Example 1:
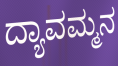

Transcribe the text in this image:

ದ್ಯಾವಮ್ಮನ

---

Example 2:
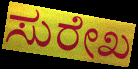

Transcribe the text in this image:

ಸುರೇಖ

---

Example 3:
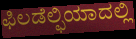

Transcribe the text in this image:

ಫಿಲಡೆಲ್ಫಿಯಾದಲ್ಲಿ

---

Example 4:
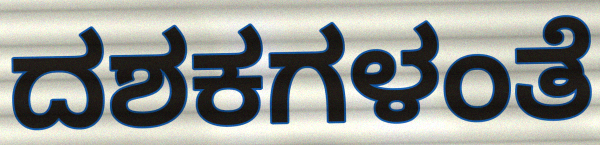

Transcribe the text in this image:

ದಶಕಗಳಂತೆ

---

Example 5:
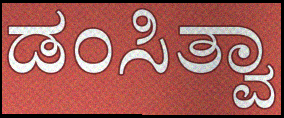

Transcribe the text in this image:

ಡಂಸಿತ್ವಾ